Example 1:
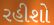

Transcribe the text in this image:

રહીશો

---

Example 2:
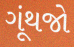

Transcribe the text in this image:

ગૂંથજો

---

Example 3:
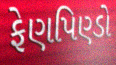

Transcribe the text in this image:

ફેણપિણ્ડો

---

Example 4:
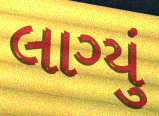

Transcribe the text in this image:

લાગ્યું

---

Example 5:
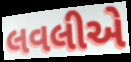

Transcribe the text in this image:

લવલીએ